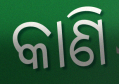
କାଣି